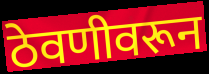
ठेवणीवरून